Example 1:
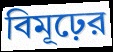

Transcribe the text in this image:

বিমূঢ়ের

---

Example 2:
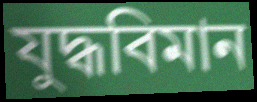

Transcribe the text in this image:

যুদ্ধবিমান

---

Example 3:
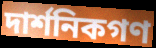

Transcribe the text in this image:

দার্শনিকগণ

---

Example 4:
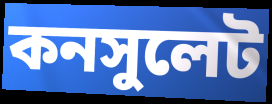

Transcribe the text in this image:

কনসুলেট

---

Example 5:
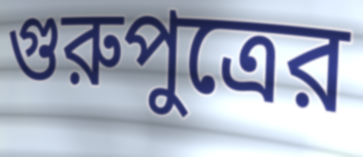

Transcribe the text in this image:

গুরুপুত্রের